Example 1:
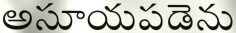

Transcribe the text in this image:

అసూయపడెను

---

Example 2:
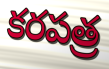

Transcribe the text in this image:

కరపత్ర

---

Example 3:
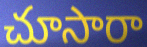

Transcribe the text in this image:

చూసారా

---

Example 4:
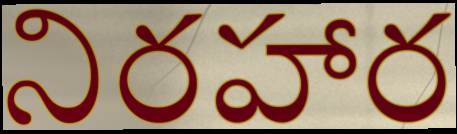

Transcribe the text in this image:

నిరహార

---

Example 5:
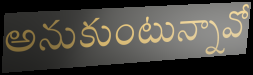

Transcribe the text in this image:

అనుకుంటున్నావో